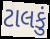
ટાલકું